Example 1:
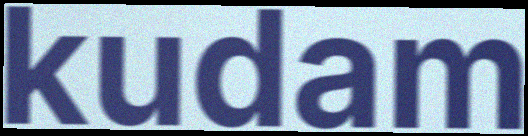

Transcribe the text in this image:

kudam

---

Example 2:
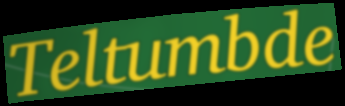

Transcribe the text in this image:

Teltumbde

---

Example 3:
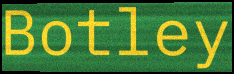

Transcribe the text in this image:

Botley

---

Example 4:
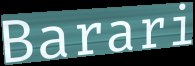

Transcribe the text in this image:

Barari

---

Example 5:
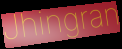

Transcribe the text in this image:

Jhingran